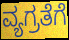
ವ್ಯಗ್ರತೆಗೆ